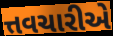
ત્તવચારીએ